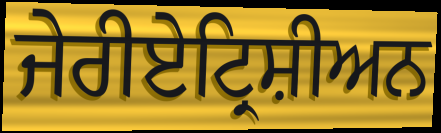
ਜੇਰੀਏਟ੍ਰਿਸ਼ੀਅਨ